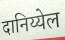
दानिय्येल